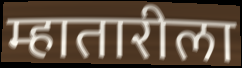
म्हातारीला